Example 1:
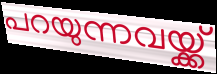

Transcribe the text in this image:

പറയുന്നവയ്ക്ക്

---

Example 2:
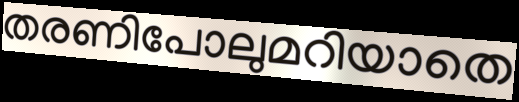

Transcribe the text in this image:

തരണിപോലുമറിയാതെ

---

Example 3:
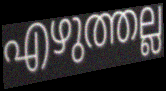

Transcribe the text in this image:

എഴുത്തല്ല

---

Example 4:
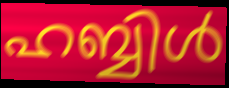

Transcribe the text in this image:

ഹബ്ബിൾ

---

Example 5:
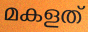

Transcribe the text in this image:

മകളത്